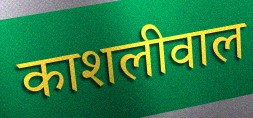
काशलीवाल